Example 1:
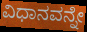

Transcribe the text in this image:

ವಿಧಾನವನ್ನೇ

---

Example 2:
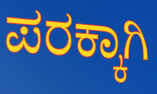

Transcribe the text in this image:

ಪರಕ್ಕಾಗಿ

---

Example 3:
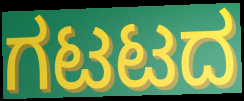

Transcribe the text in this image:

ಗಟಟದ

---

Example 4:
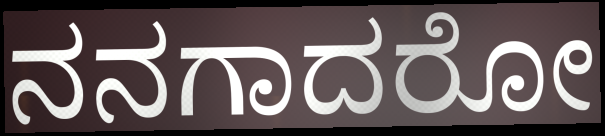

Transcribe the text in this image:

ನನಗಾದರೋ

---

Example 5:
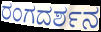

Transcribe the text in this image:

ರಂಗದರ್ಶನ